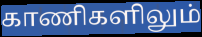
காணிகளிலும்